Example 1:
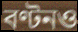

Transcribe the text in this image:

বণ্টনও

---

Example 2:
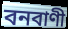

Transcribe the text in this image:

বনবাণী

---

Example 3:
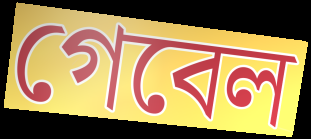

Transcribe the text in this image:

গেবেল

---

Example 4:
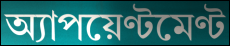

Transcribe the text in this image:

অ্যাপয়েণ্টমেণ্ট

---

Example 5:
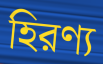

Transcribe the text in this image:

হিরণ্য